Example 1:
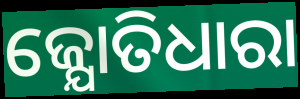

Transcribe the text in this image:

ଜ୍ଯୋତିଧାରା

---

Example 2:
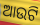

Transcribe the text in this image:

ଆଉଟି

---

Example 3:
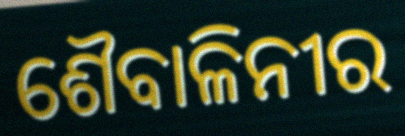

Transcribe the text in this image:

ଶୈବାଳିନୀର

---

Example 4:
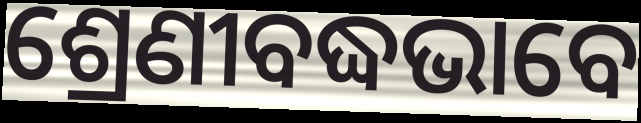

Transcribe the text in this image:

ଶ୍ରେଣୀବଦ୍ଧଭାବେ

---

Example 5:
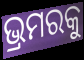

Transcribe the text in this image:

ଭ୍ରମରକୁ